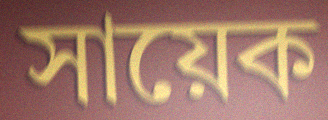
সায়েক